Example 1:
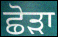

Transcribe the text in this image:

ਛੋੜਾ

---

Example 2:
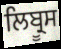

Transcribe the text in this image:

ਲਿਬ੍ਰੂਸ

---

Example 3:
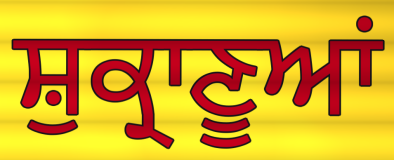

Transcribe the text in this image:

ਸ਼ੁਕ੍ਰਾਣੂਆਂ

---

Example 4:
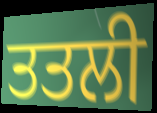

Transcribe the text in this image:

ਤਤਲੀ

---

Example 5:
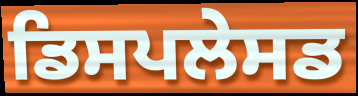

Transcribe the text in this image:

ਡਿਸਪਲੇਸਡ